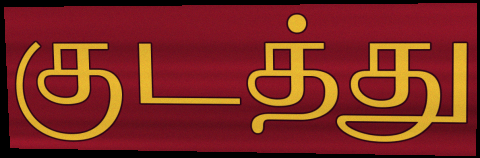
குடத்து